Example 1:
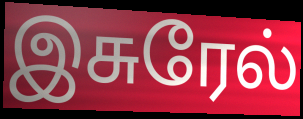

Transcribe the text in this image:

இசுரேல்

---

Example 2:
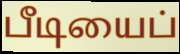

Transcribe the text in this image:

பீடியைப்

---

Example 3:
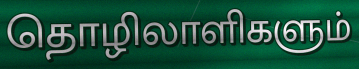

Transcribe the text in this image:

தொழிலாளிகளும்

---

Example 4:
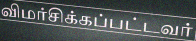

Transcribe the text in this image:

விமர்சிக்கப்பட்டவர்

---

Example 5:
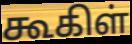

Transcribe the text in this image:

கூகிள்